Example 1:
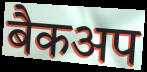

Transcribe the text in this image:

बैकअप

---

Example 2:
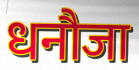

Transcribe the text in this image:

धनौजा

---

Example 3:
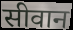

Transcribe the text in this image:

सीवान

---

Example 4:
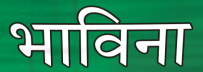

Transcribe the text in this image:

भाविना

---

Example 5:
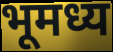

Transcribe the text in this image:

भूमध्य